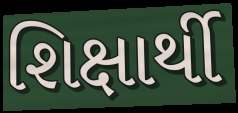
શિક્ષાર્થી